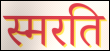
स्मरति